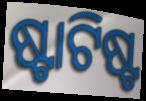
ଷ୍ଟାଟିଷ୍ଟ